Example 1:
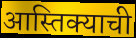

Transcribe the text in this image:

आस्तिक्याची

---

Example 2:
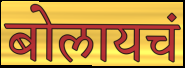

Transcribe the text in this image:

बोलायचं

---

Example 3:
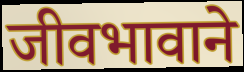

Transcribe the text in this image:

जीवभावाने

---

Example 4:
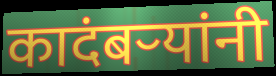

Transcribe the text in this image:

कादंबऱ्यांनी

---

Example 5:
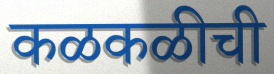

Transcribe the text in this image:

कळकळीची